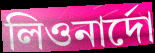
লিওনার্দো